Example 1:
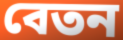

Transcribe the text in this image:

বেতন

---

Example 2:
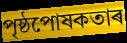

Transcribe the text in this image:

পৃষ্ঠপোষকতাৰ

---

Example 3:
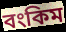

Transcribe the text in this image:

বংকিম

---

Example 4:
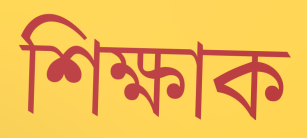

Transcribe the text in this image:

শিক্ষাক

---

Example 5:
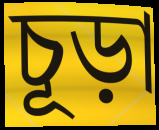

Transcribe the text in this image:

চূড়া